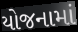
યોજનામાં